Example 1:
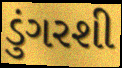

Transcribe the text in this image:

ડુંગરશી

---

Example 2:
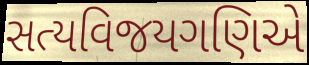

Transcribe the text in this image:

સત્યવિજયગણિએ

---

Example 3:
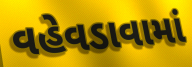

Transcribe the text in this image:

વહેવડાવામાં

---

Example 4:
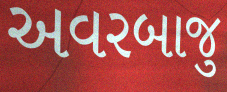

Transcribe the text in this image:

અવરબાજુ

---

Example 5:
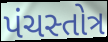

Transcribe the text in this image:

પંચસ્તોત્ર